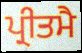
ਪ੍ਰੀਤਮੈ